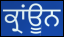
ਕ੍ਰਾਂਊਨ